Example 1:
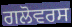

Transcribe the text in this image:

ਗਲੋਵਰਸ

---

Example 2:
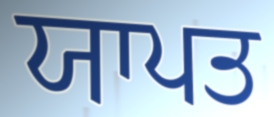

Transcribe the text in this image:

ਯਾਪਤ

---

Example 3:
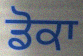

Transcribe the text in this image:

ਡੋਕਾ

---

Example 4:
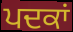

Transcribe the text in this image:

ਪਦਕਾਂ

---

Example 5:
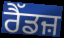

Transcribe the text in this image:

ਰੈੱਡਜ਼